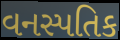
વનસ્પતિક